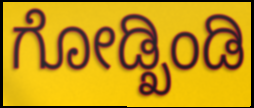
ಗೋಡ್ಖಿಂಡಿ